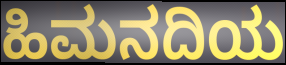
ಹಿಮನದಿಯ